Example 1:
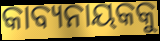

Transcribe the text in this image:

କାବ୍ୟନାୟକକୁ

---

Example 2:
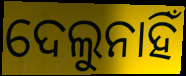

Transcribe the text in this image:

ଦେଲୁନାହିଁ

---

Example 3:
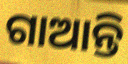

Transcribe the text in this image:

ଗାଆନ୍ତି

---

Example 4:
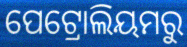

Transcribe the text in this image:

ପେଟ୍ରୋଲିୟମରୁ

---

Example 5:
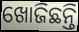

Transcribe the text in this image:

ଖୋଜିଛନ୍ତି